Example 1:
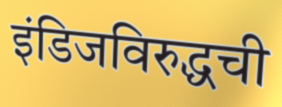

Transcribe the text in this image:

इंडिजविरुद्धची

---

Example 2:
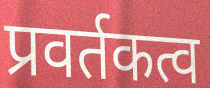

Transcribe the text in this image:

प्रवर्तकत्व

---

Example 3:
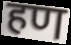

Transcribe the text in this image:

हण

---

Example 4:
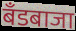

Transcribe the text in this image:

बँडबाजा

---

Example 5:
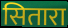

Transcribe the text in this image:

सितारा